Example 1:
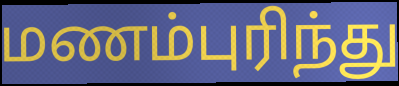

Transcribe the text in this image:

மணம்புரிந்து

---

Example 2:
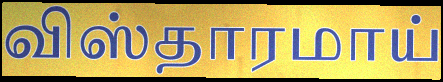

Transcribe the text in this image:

விஸ்தாரமாய்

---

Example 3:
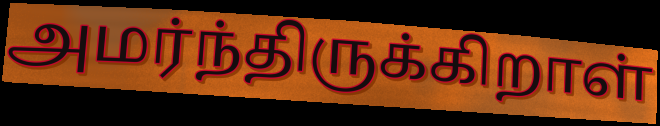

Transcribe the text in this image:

அமர்ந்திருக்கிறாள்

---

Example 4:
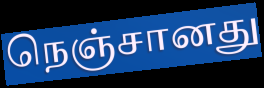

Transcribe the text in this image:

நெஞ்சானது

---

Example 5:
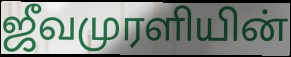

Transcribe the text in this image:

ஜீவமுரளியின்